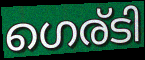
ഗെര്ടി